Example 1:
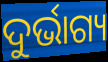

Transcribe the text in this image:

ଦୁର୍ଭାଗ୍ୟ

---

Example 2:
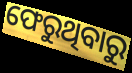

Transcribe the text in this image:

ଫେରୁଥିବାରୁ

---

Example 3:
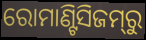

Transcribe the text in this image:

ରୋମାଣ୍ଟିସିଜମ୍‌ରୁ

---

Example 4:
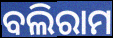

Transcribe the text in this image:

ବଲିରାମ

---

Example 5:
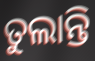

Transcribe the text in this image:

ତୁଲାନ୍ତି